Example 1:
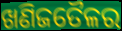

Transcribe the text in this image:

ଖଣିଜତୈଳର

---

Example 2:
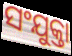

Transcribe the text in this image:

ସଂଯୁକ୍ତା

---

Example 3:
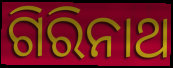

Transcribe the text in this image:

ଗିରିନାଥ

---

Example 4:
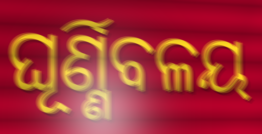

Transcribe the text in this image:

ଘୂର୍ଣ୍ଣିବଳୟ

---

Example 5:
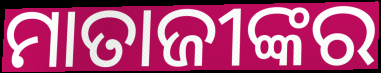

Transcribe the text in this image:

ମାତାଜୀଙ୍କର